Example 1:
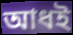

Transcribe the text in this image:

আধই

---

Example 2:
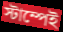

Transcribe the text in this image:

স্টাম্পেই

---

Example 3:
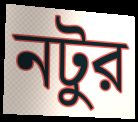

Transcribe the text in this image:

নটুর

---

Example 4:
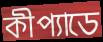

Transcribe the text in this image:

কীপ্যাডে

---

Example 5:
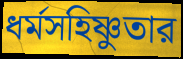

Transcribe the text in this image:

ধর্মসহিষ্ণুতার